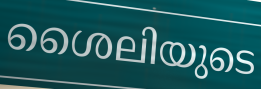
ശൈലിയുടെ